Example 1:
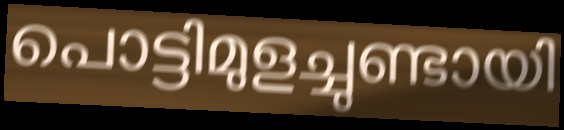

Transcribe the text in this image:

പൊട്ടിമുളച്ചുണ്ടായി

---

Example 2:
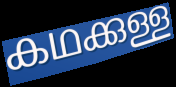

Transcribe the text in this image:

കഥക്കുള്ള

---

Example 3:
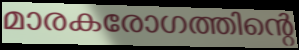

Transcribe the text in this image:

മാരകരോഗത്തിന്റെ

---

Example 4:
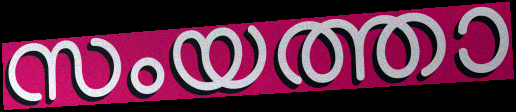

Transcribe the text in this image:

സംയത്താ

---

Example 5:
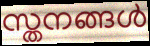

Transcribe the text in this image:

സ്തനങ്ങൾ